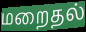
மறைதல்